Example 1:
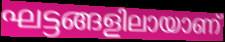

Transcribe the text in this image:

ഘട്ടങ്ങളിലായാണ്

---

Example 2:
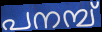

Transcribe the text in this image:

പനമ്പ്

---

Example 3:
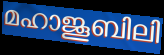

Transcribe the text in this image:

മഹാജൂബിലി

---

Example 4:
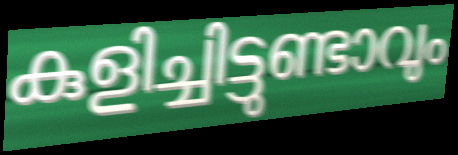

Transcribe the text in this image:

കുളിച്ചിട്ടുണ്ടാവും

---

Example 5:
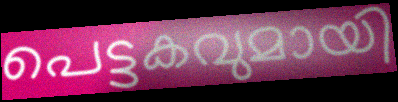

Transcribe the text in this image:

പെട്ടകവുമായി